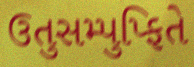
ઉતુસમ્પુપ્ફિતે